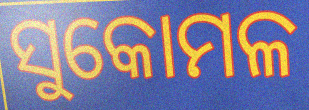
ସୁକୋମଳ